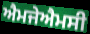
ਐਮਜੇਐਮਸੀ